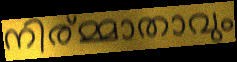
നിര്മ്മാതാവും